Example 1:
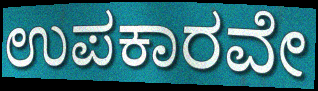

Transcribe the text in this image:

ಉಪಕಾರವೇ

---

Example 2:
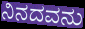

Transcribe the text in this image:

ನಿನದವನು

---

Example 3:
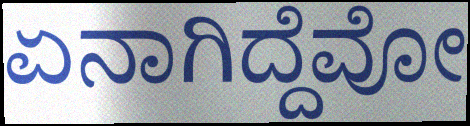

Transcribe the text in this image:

ಏನಾಗಿದ್ದೆವೋ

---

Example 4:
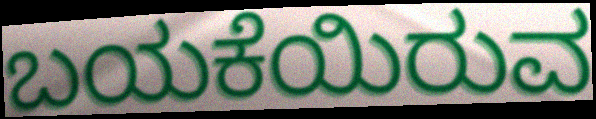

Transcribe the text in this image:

ಬಯಕೆಯಿರುವ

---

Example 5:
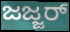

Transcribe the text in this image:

ಜಜ್ಜರ್